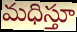
మధిస్తూ